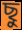
ছু